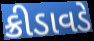
ક્રીડાવડે